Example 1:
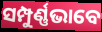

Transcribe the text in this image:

ସମ୍ପୁର୍ଣ୍ଣଭାବେ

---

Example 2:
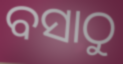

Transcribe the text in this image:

ବସାଠୁ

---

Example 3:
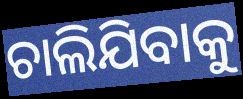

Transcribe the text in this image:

ଚାଲିଯିବାକୁ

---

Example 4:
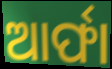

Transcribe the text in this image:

ଆର୍ଫା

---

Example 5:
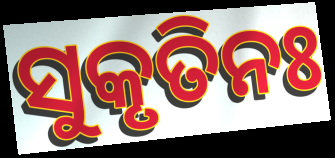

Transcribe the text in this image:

ସୁକୃତିନଃ